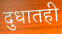
दुधातही